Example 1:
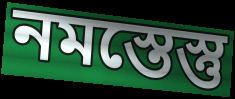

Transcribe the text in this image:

নমস্তেস্তু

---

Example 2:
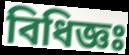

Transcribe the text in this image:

বিধিজ্ঞঃ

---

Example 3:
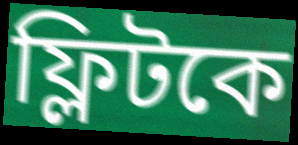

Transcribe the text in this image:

ফ্লিটকে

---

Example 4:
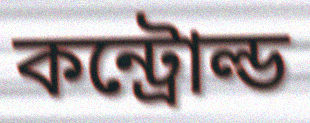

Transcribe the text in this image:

কন্ট্রোল্ড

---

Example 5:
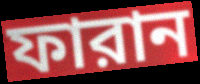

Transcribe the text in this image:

ফারান